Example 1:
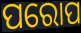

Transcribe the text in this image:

ପରୋପ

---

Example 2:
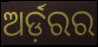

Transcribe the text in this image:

ଅର୍ଡ଼ରର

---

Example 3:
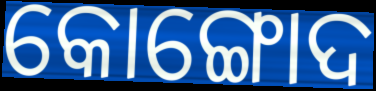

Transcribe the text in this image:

କୋଙ୍ଗୋଦ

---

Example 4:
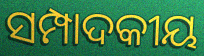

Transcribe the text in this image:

ସମ୍ପାଦକୀୟ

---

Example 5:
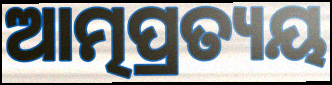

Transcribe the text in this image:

ଆତ୍ମପ୍ରତ୍ୟୟ